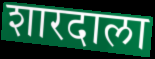
शारदाला